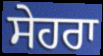
ਸੇਹਰਾ